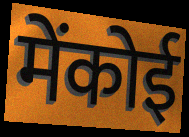
मेंकोई